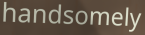
handsomely